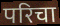
परिचा